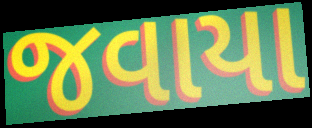
જવાયા